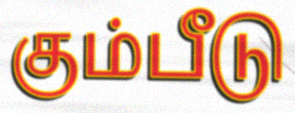
கும்பீடு